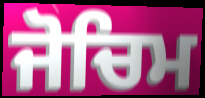
ਜੋਚਿਮ